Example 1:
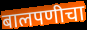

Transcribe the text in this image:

बालपणीचा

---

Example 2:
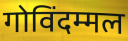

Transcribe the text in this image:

गोविंदम्मल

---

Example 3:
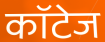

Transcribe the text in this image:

कॉटेज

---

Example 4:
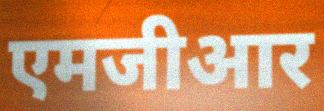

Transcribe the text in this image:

एमजीआर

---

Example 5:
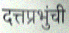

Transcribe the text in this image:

दत्तप्रभुंची